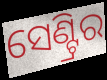
ସେଣ୍ଟ୍ରିର